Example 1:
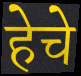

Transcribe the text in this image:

हेचे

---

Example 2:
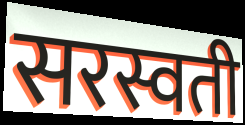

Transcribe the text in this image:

सरस्वती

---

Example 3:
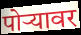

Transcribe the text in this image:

पोर्‍यावर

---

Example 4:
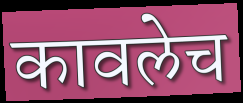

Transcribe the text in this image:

कावलेच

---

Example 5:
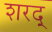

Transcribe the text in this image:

शरद्